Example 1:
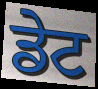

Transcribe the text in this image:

ਡੇਟ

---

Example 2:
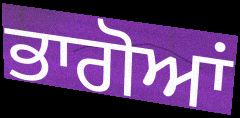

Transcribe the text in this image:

ਭਾਗੋਆਂ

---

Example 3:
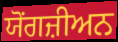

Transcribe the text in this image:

ਯੋਂਗਜ਼ੀਅਨ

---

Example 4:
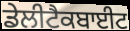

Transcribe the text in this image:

ਡੇਲੀਟੈਕਬਾਈਟ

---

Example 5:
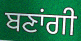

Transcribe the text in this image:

ਬਣਾਂਗੀ